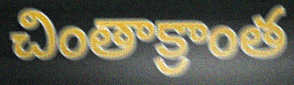
చింతాక్రాంత